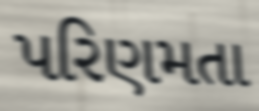
પરિણમતા